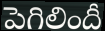
పెగిలిందీ